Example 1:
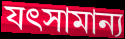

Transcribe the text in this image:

যৎসামান্য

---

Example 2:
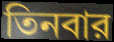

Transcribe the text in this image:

তিনবার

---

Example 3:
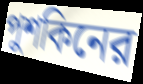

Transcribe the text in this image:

পুশকিনের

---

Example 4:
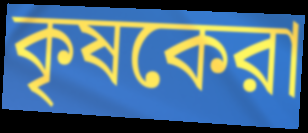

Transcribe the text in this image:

কৃষকেরা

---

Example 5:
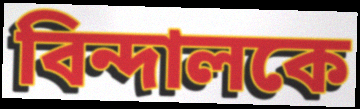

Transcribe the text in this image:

বিন্দালকে